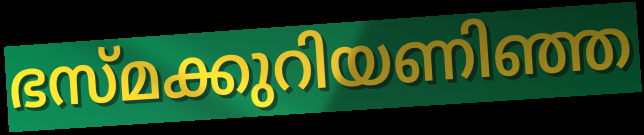
ഭസ്മക്കുറിയണിഞ്ഞ